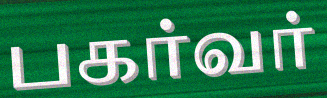
பகர்வர்